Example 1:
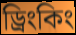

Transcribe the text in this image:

ড্রিংকিং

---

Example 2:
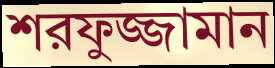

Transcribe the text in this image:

শরফুজ্জামান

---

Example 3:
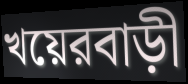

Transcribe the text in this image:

খয়েরবাড়ী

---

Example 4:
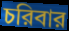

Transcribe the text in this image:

চরিবার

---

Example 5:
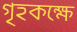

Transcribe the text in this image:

গৃহকক্ষে